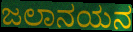
ಜಲಾನಯನ